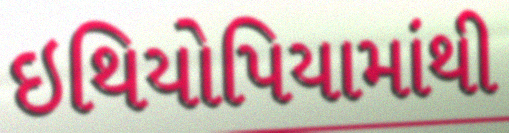
ઇથિયોપિયામાંથી